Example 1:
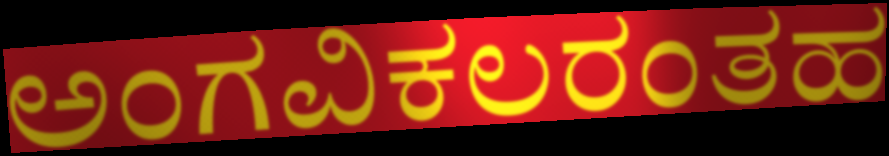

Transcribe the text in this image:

ಅಂಗವಿಕಲರಂತಹ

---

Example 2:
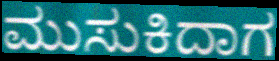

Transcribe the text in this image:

ಮುಸುಕಿದಾಗ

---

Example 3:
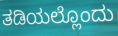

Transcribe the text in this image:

ತಡಿಯಲ್ಲೊಂದು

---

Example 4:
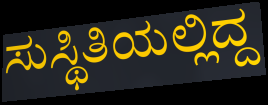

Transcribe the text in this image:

ಸುಸ್ಥಿತಿಯಲ್ಲಿದ್ದ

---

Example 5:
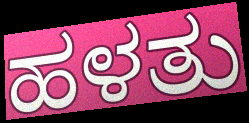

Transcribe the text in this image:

ಹಳತು